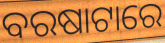
ବରଷାଟାରେ